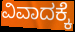
ವಿವಾದಕ್ಕೆ